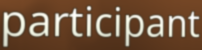
participant